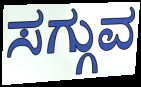
ಸಗ್ಗುವ